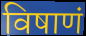
विषाणं